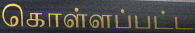
கொள்ளப்பட்ட